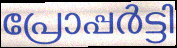
പ്രോപ്പർട്ടി